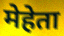
मेहेता